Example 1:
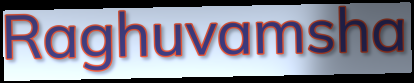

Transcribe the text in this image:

Raghuvamsha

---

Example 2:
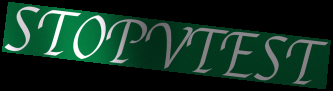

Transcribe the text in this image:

STOPVTEST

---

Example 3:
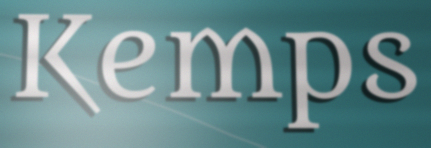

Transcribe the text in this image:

Kemps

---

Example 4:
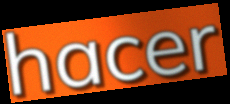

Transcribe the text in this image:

hacer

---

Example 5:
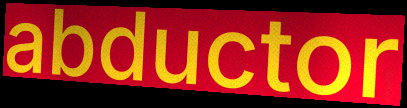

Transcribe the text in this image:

abductor